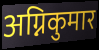
अग्निकुमार